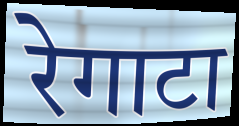
रेगाटा